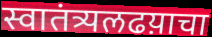
स्वातंत्र्यलढय़ाचा